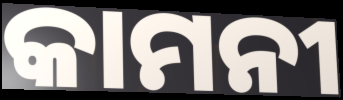
କାମନୀ